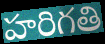
హరిగతి